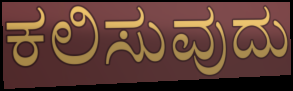
ಕಲಿಸುವುದು